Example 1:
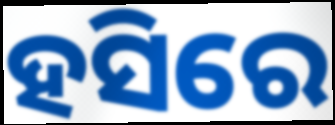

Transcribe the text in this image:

ହସିରେ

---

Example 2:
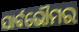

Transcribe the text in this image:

ସାର୍ବଭୌମର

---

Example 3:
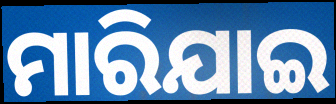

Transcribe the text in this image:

ମାରିଯାଇ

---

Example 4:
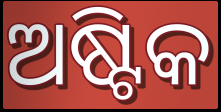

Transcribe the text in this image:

ଅଷ୍ଟିକ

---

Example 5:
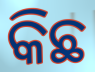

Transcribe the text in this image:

କିଛ